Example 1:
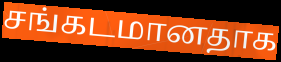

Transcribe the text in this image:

சங்கடமானதாக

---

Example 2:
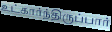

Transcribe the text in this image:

உட்கார்ந்திருப்பார்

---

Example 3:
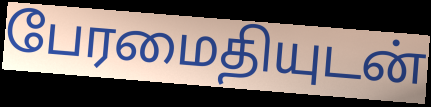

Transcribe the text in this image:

பேரமைதியுடன்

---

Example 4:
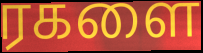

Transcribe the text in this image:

ரகளை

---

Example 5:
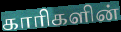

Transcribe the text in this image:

காரிகளின்